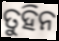
ତୁହିନ